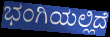
ಭಂಗಿಯಲ್ಲಿದೆ